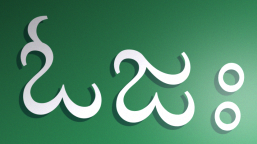
ಓಜಃ